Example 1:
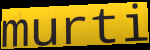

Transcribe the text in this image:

murti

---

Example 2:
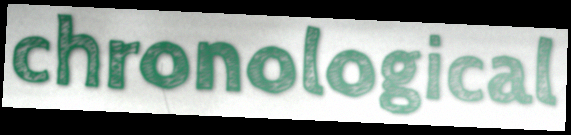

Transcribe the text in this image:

chronological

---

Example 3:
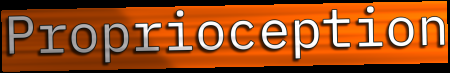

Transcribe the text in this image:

Proprioception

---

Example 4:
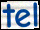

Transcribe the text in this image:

tel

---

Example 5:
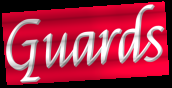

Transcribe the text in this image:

Guards